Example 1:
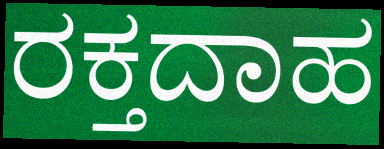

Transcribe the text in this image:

ರಕ್ತದಾಹ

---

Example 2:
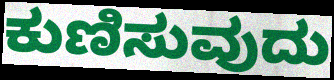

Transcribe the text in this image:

ಕುಣಿಸುವುದು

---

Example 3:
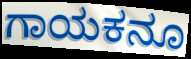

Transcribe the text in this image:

ಗಾಯಕನೂ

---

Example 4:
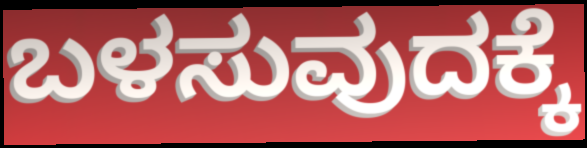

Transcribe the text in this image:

ಬಳಸುವುದಕ್ಕೆ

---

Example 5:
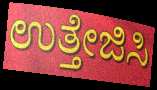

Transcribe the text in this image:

ಉತ್ತೇಜಿಸಿ